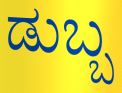
ಡುಬ್ಬ